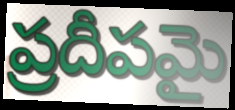
ప్రదీపమై